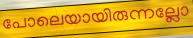
പോലെയായിരുന്നല്ലോ